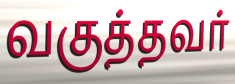
வகுத்தவர்